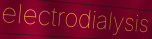
electrodialysis